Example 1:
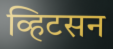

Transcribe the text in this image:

व्हिटसन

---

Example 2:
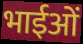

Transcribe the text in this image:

भाईओं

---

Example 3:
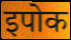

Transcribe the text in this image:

इपोक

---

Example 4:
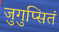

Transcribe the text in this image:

जुगुप्सितं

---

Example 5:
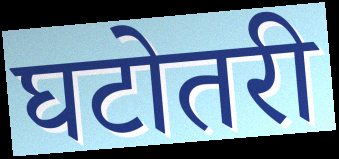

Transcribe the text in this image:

घटोतरी